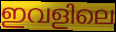
ഇവളിലെ